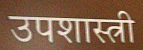
उपशास्त्री